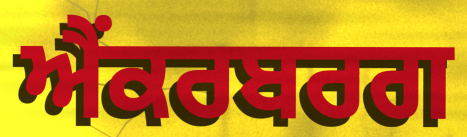
ਐਂਕਰਬਰਗ